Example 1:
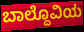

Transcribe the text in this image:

ಬಾಲ್ದೊವಿಯ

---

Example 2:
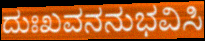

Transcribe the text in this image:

ದುಃಖವನನುಭವಿಸಿ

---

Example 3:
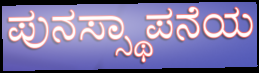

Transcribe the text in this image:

ಪುನಸ್ಸ್ಥಾಪನೆಯ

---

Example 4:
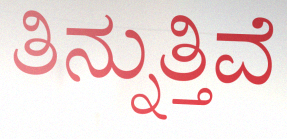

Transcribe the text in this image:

ತಿನ್ನುತ್ತಿವೆ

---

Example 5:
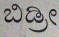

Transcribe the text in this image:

ಬಿಡ್ರೀ